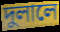
দুলালে